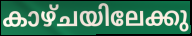
കാഴ്ചയിലേക്കു